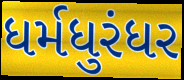
ધર્મધુરંધર